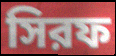
সিরফ